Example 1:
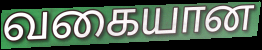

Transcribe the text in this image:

வகையான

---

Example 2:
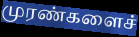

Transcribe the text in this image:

முரண்களைச்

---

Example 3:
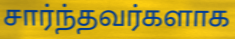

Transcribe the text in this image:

சார்ந்தவர்களாக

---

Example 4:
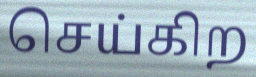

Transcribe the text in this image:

செய்கிற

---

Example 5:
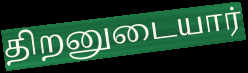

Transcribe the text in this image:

திறனுடையார்